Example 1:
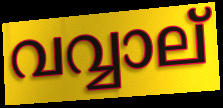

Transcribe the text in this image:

വവ്വാല്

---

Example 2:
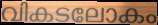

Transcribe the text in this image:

വികടലോകം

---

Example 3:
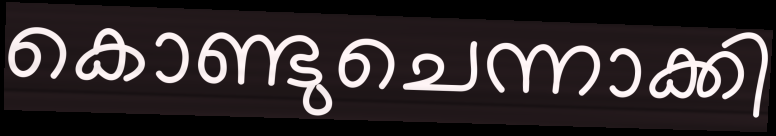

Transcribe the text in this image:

കൊണ്ടുചെന്നാക്കി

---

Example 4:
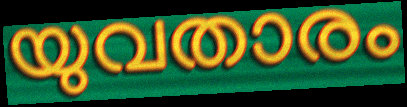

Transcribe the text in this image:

യുവതാരം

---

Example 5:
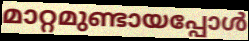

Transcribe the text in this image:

മാറ്റമുണ്ടായപ്പോൾ